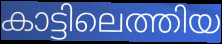
കാട്ടിലെത്തിയ